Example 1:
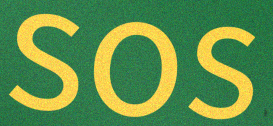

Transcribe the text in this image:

sos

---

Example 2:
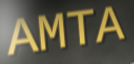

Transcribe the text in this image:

AMTA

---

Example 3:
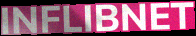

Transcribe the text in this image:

INFLIBNET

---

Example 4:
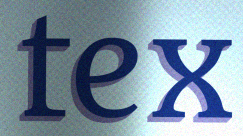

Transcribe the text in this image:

tex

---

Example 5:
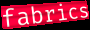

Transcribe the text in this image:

fabrics